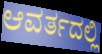
ಆವರ್ತದಲ್ಲಿ